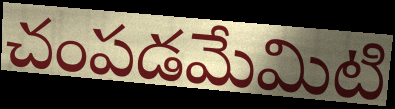
చంపడమేమిటి